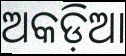
ଅକଡ଼ିଆ